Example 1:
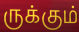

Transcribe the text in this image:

ருக்கும்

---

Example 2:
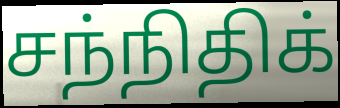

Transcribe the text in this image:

சந்நிதிக்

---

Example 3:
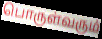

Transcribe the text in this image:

பொருள்வரும்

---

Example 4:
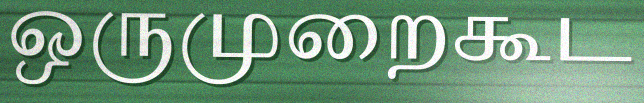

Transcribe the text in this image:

ஒருமுறைகூட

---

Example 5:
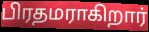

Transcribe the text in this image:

பிரதமராகிறார்